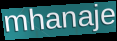
mhanaje